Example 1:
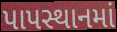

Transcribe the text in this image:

પાપસ્થાનમાં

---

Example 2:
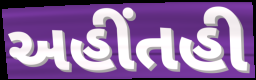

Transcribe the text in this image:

અહીંતહી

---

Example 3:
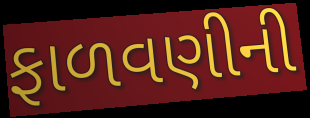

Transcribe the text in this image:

ફાળવણીની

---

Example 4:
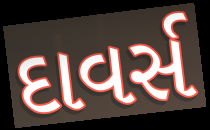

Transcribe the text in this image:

દાવર્સ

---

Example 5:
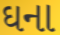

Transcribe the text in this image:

ઘના